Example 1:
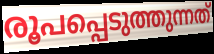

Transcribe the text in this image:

രൂപപ്പെടുത്തുന്നത്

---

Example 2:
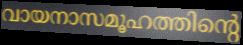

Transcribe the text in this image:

വായനാസമൂഹത്തിന്റെ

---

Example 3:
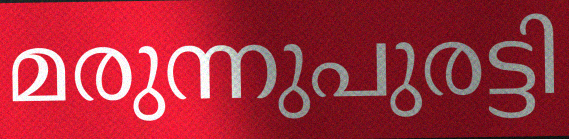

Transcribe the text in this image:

മരുന്നുപുരട്ടി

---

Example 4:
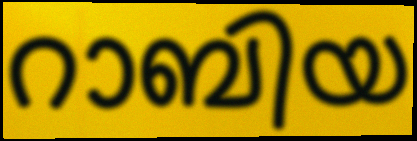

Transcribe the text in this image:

റാബിയ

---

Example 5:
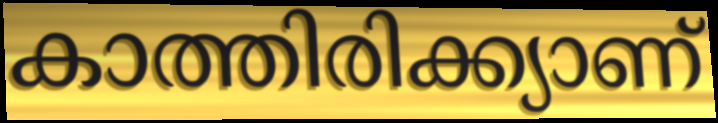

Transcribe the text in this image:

കാത്തിരിക്ക്യാണ്